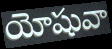
యోషువా